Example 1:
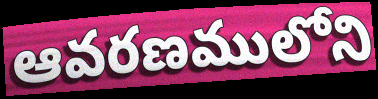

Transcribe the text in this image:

ఆవరణములోని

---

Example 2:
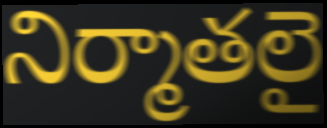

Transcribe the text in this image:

నిర్మాతలై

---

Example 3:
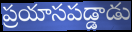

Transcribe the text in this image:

ప్రయాసపడ్డాడు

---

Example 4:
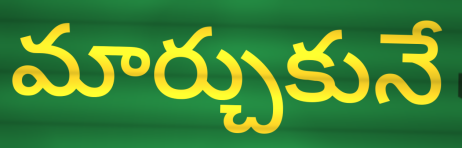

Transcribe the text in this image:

మార్చుకునే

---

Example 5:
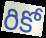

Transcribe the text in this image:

రికో